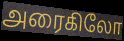
அரைகிலோ